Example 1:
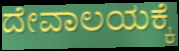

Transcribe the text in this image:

ದೇವಾಲಯಕ್ಕೆ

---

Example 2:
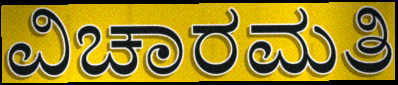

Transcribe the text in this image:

ವಿಚಾರಮತಿ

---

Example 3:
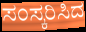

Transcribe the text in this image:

ಸಂಸ್ಕರಿಸಿದ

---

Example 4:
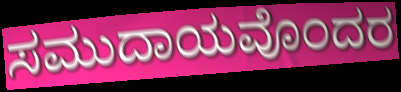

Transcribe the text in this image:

ಸಮುದಾಯವೊಂದರ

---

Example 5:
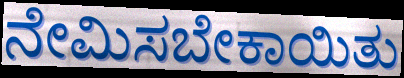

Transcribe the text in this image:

ನೇಮಿಸಬೇಕಾಯಿತು